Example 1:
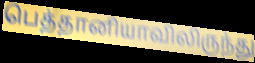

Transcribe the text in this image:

பெத்தானியாவிலிருந்து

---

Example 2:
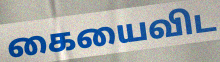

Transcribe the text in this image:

கையைவிட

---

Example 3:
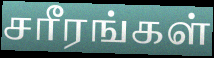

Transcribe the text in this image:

சரீரங்கள்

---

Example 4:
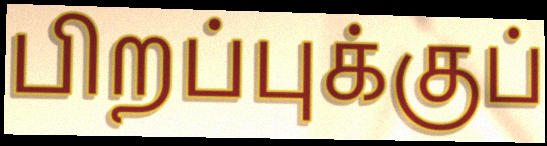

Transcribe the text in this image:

பிறப்புக்குப்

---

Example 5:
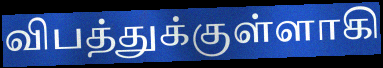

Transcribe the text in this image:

விபத்துக்குள்ளாகி